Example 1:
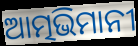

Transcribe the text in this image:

ଆତ୍ମଭିମାନୀ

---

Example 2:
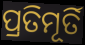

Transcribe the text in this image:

ପ୍ରତିମୂର୍ତି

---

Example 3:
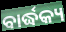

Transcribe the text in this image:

ବାର୍ଦ୍ଧକ୍ୟ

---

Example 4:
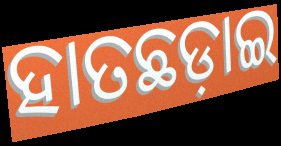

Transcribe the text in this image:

ହାତଛଡ଼ାଇ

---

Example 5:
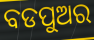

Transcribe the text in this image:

ବଡପୁଅର